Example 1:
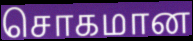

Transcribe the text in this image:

சொகமான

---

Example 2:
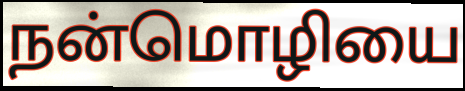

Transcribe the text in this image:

நன்மொழியை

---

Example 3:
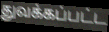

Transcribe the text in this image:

துவக்கப்பட்ட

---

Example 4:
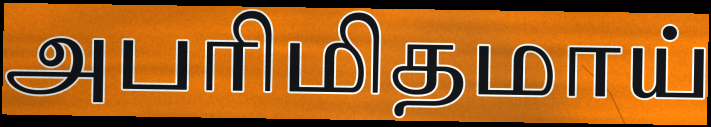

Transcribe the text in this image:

அபரிமிதமாய்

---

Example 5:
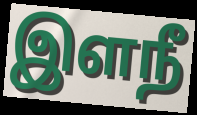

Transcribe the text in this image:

இளநீ